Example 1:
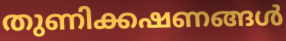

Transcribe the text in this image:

തുണിക്കഷണങ്ങൾ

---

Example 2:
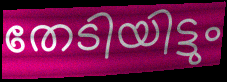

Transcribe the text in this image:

തേടിയിട്ടും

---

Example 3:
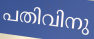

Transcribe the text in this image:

പതിവിനു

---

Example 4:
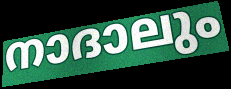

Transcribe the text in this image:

നാദാലും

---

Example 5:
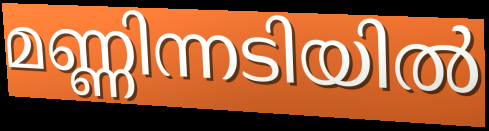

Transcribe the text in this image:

മണ്ണിന്നടിയിൽ